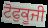
ਟੋਫੁਕੂਜੀ